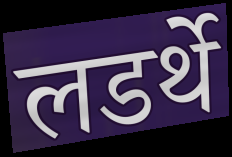
लडर्थे